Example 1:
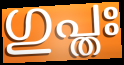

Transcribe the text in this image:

ഗുപ്തഃ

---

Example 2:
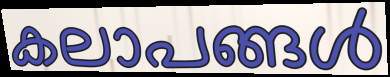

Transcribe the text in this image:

കലാപങ്ങൾ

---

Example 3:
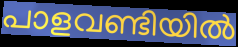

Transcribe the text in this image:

പാളവണ്ടിയിൽ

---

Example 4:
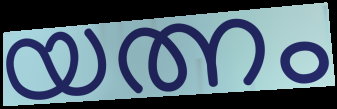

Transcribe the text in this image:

യത്നം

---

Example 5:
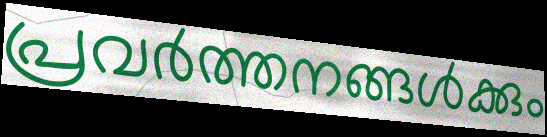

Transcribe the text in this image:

പ്രവർത്തനങ്ങൾക്കും